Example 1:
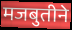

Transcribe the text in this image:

मजबुतीने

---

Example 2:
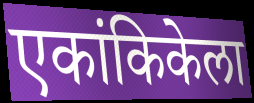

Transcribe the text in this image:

एकांकिकेला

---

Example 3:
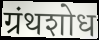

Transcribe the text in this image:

ग्रंथशोध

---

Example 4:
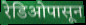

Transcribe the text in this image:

रेडिओपासून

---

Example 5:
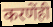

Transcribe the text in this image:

करणेंही